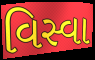
વિસ્વા